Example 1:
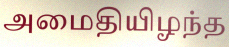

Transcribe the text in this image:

அமைதியிழந்த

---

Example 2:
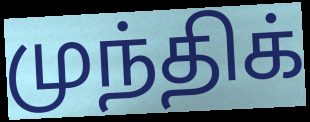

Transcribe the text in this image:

முந்திக்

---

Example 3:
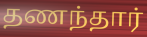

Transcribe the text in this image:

தணந்தார்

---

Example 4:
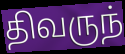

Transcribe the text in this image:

திவருந்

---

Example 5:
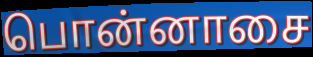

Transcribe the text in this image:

பொன்னாசை